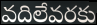
వదిలేవరకు